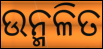
ଉନ୍ମଳିତ